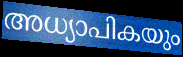
അധ്യാപികയും